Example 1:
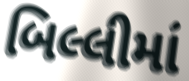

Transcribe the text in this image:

બિલ્લીમાં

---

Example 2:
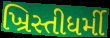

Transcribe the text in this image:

ખ્રિસ્તીધર્મી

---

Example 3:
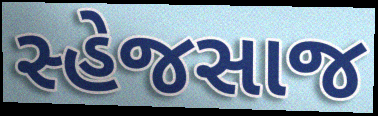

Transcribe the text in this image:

સ્હેજસાજ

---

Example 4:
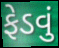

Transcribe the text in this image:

ફેડવું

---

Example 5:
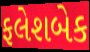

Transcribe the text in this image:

ફલેશબેક